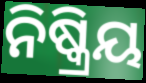
ନିଷ୍କ୍ରିୟ